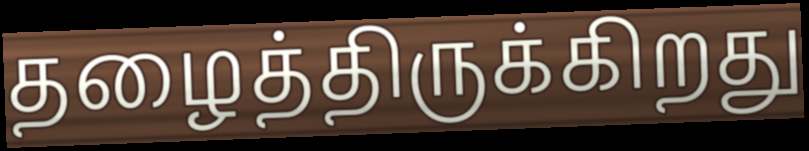
தழைத்திருக்கிறது